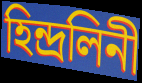
হিন্দ্রলিনী